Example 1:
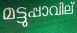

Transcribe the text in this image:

മട്ടുപ്പാവില്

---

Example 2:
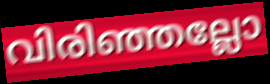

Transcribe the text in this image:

വിരിഞ്ഞല്ലോ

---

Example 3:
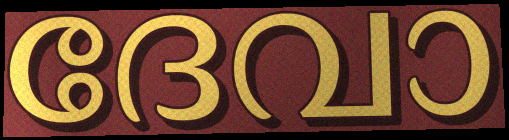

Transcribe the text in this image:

ദേവാ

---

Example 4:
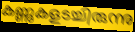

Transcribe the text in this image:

കണ്ണുകളടച്ചിരുന്നു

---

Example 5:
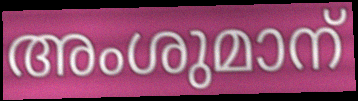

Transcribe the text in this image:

അംശുമാന്